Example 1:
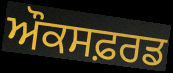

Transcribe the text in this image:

ਔਕਸਫ਼ਰਡ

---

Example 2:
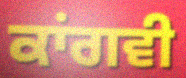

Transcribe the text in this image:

ਕਾਂਗਵੀ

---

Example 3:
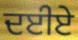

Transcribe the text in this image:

ਦਈਏ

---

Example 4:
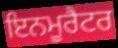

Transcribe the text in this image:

ਇਨਮੂਰੈਟਰ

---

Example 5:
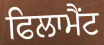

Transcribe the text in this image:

ਫਿਲਾਮੈਂਟ